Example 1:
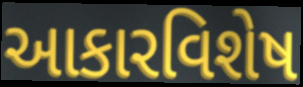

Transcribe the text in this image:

આકારવિશેષ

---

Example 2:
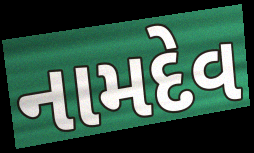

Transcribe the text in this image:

નામદેવ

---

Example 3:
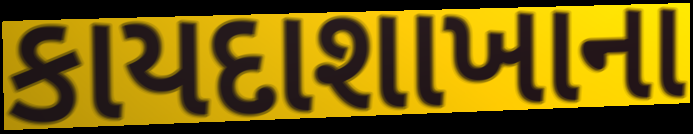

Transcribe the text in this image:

કાયદાશાખાના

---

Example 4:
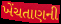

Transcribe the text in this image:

ખેંચતાણની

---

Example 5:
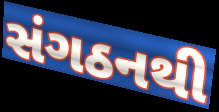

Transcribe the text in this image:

સંગઠનથી